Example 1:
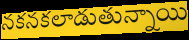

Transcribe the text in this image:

నకనకలాడుతున్నాయి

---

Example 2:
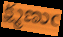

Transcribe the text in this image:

క్ష్మణుఁ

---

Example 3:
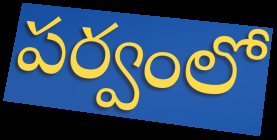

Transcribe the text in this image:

పర్వంలో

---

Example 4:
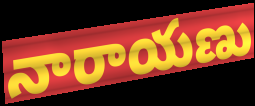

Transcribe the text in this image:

నారాయణు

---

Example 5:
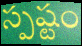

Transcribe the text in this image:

స్పష్టం